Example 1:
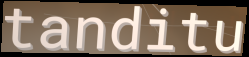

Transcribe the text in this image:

tanditu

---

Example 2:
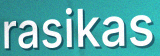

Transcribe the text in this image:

rasikas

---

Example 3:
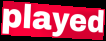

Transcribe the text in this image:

played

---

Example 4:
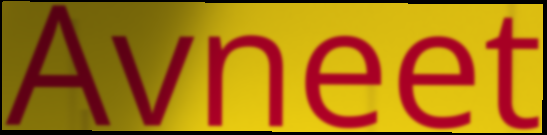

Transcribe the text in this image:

Avneet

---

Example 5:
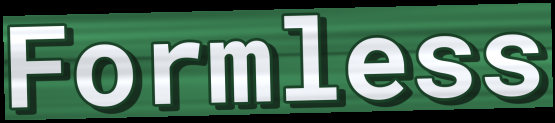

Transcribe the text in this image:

Formless